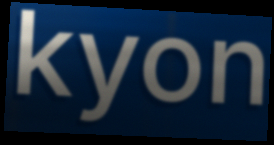
kyon